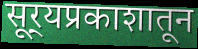
सूर्यप्रकाशातून